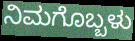
ನಿಮಗೊಬ್ಬಳು